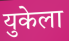
युकेला